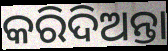
କରିଦିଅନ୍ତା